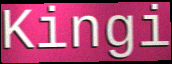
Kingi